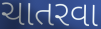
ચાતરવા